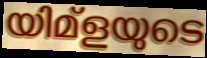
യിമ്ളയുടെ